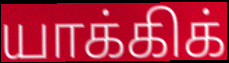
யாக்கிக்